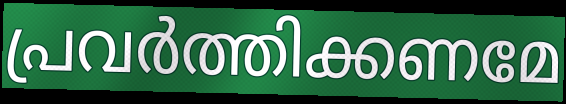
പ്രവർത്തിക്കണമേ